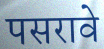
पसरावे